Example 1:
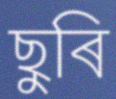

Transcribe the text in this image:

ছুৰি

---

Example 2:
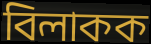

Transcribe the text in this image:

বিলাকক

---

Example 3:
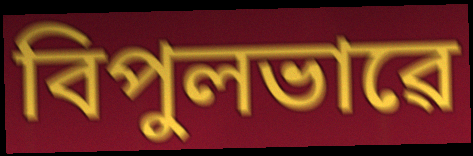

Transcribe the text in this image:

বিপুলভাৱে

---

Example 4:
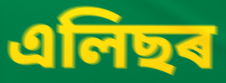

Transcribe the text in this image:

এলিছৰ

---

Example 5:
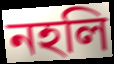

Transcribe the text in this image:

নহলি